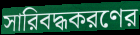
সারিবদ্ধকরণের